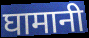
घामानी